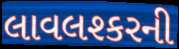
લાવલશ્કરની